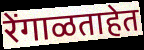
रेंगाळताहेत